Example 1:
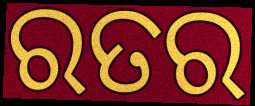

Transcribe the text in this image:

ରତର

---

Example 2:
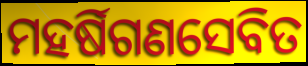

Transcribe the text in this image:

ମହର୍ଷିଗଣସେବିତ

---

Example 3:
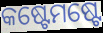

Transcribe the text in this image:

କଷ୍ଟେମଷ୍ଟେ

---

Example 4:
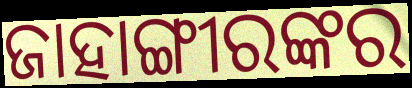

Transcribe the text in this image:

ଜାହାଙ୍ଗୀରଙ୍କର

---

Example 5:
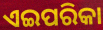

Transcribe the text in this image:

ଏଇପରିକା